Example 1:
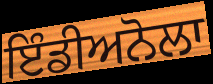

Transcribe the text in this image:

ਇੰਡੀਅਨੋਲਾ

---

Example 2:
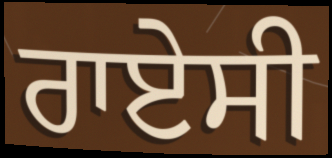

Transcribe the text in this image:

ਰਾਏਸੀ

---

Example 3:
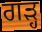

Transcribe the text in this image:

ਗੜ੍ਹ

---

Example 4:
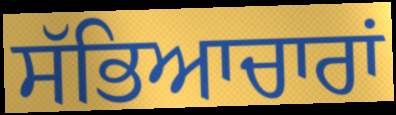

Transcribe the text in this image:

ਸੱਭਿਆਚਾਰਾਂ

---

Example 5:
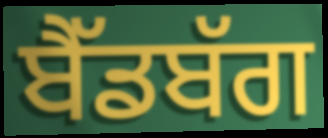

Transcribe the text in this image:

ਬੈੱਡਬੱਗ